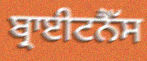
ਬ੍ਰਾਈਟਨੈੱਸ